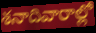
శనాదివారాల్లో